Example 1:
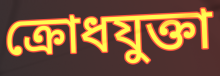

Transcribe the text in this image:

ক্রোধযুক্তা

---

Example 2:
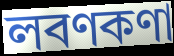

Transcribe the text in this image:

লবণকণা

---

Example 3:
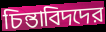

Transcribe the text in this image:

চিন্তাবিদদের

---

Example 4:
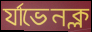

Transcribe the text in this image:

র্যাভেনক্ল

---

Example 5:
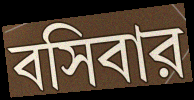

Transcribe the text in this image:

বসিবার